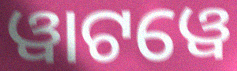
ୱାଟୱେ